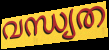
വന്ധ്യത